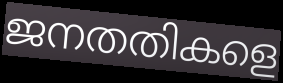
ജനതതികളെ